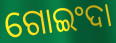
ଗୋଇଂଦା